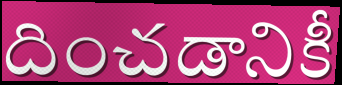
దించడానికీ